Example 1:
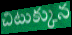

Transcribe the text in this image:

చిటుక్కున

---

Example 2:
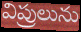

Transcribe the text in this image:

విప్రులును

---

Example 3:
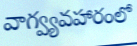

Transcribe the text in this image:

వాగ్వ్యవహారంలో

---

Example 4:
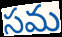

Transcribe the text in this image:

సమ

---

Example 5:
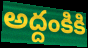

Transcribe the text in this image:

అద్దంకికి